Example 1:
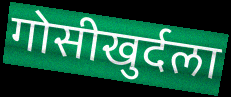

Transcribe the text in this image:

गोसीखुर्दला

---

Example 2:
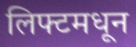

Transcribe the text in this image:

लिफ्टमधून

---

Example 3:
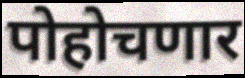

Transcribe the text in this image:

पोहोचणार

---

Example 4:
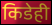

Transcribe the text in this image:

किडेही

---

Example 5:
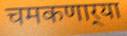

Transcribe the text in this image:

चमकणार्या